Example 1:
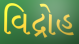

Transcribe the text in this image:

વિદ્રોહ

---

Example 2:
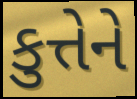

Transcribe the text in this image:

કુત્તેને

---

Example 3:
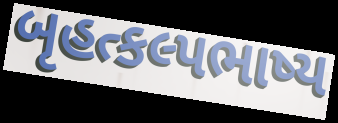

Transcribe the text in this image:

બૃહત્કલ્પભાષ્ય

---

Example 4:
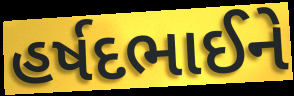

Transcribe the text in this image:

હર્ષદભાઈને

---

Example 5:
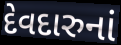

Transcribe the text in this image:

દેવદારુનાં